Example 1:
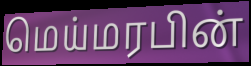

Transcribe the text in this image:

மெய்மரபின்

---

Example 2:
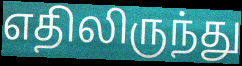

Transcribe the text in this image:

எதிலிருந்து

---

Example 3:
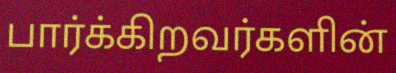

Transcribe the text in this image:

பார்க்கிறவர்களின்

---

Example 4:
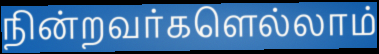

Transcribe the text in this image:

நின்றவர்களெல்லாம்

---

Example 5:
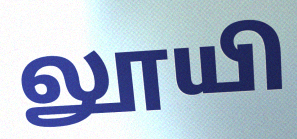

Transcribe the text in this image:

லூயி